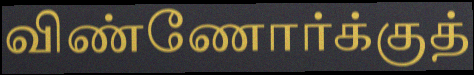
விண்ணோர்க்குத்